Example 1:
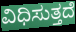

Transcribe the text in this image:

ವಿಧಿಸುತ್ತದೆ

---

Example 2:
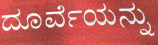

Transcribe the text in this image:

ದೂರ್ವೆಯನ್ನು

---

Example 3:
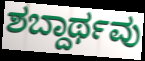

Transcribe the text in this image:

ಶಬ್ದಾರ್ಥವು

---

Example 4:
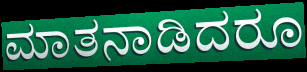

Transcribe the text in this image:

ಮಾತನಾಡಿದರೂ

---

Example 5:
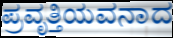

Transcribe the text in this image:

ಪ್ರವೃತ್ತಿಯವನಾದ